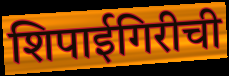
शिपाईगिरीची